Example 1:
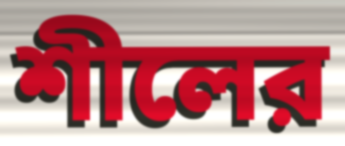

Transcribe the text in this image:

শীলের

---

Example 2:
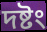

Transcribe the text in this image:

দষ্টং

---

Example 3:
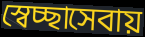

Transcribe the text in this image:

স্বেচ্ছাসেবায়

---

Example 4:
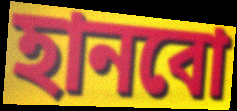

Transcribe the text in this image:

হানবো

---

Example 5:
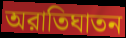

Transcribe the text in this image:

অরাতিঘাতন